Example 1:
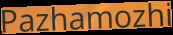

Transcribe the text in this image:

Pazhamozhi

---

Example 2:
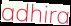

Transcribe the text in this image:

adhira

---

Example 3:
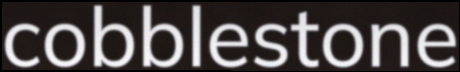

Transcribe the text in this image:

cobblestone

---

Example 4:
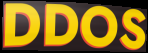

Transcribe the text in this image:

DDOS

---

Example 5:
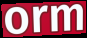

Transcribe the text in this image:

orm